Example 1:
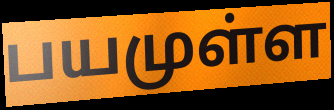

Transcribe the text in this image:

பயமுள்ள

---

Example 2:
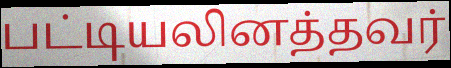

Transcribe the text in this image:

பட்டியலினத்தவர்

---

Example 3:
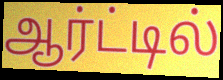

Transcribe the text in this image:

ஆர்ட்டில்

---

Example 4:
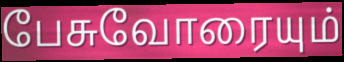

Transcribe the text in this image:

பேசுவோரையும்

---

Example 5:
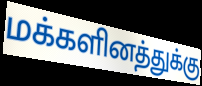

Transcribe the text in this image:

மக்களினத்துக்கு